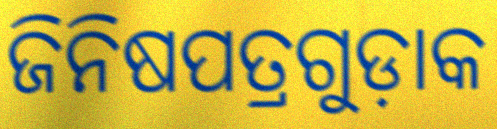
ଜିନିଷପତ୍ରଗୁଡ଼ାକ